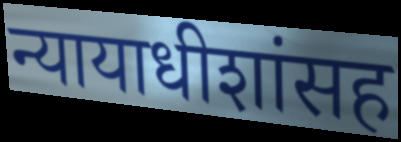
न्यायाधीशांसह